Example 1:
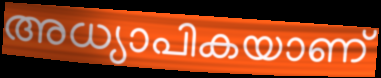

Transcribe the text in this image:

അധ്യാപികയാണ്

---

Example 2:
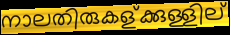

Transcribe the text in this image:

നാലതിരുകള്ക്കുള്ളില്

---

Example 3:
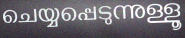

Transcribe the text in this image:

ചെയ്യപ്പെടുന്നുള്ളൂ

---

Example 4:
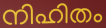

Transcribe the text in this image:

നിഹിതം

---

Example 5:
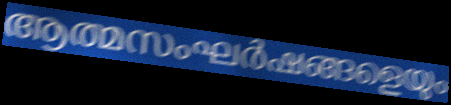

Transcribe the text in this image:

ആത്മസംഘർഷങ്ങളെയും